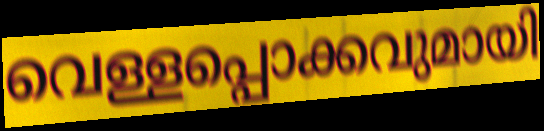
വെള്ളപ്പൊക്കവുമായി